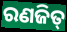
ରଣଜିତ୍